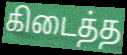
கிடைத்த